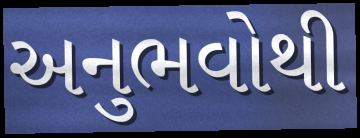
અનુભવોથી